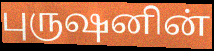
புருஷனின்